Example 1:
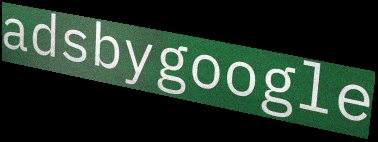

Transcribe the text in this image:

adsbygoogle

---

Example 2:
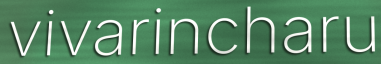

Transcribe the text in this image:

vivarincharu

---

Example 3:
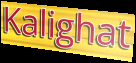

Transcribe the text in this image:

Kalighat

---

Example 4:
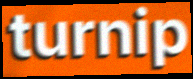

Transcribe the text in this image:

turnip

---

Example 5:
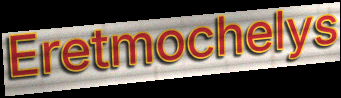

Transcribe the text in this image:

Eretmochelys